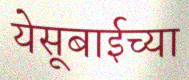
येसूबाईच्या